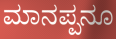
ಮಾನಪ್ಪನೂ